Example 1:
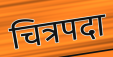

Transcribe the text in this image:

चित्रपदा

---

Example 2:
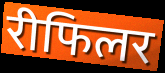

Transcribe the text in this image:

रीफिलर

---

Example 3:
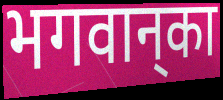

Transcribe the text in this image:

भगवान्‌का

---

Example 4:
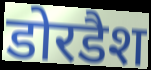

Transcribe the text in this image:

डोरडैश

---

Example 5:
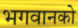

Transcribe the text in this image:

भगवानको